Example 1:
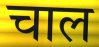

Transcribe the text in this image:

चाल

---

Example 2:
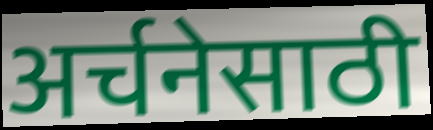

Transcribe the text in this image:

अर्चनेसाठी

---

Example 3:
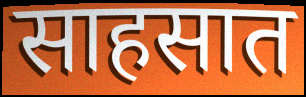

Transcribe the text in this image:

साहसात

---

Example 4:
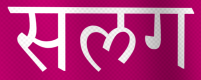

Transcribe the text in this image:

सलग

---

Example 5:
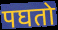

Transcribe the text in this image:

पघतो